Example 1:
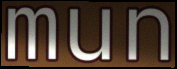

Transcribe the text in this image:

mun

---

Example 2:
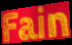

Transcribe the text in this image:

Fain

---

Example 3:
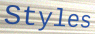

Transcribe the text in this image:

Styles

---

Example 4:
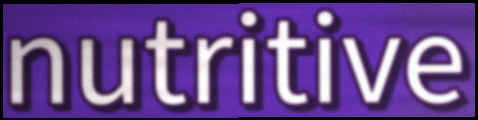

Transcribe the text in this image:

nutritive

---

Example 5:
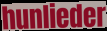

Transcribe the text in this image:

hunlieder